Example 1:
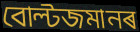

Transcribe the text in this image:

বোল্টজমানৰ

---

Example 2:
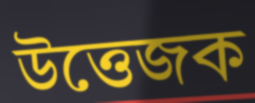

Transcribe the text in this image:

উত্তেজক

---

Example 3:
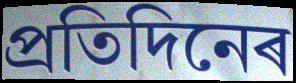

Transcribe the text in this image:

প্ৰতিদিনেৰ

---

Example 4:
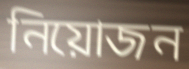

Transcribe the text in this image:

নিয়োজন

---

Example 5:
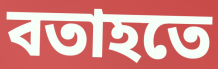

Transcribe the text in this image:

বতাহতে